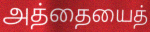
அத்தையைத்